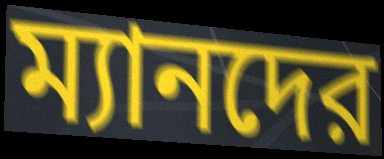
ম্যানদের